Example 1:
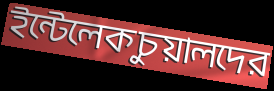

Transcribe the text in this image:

ইন্টেলেকচুয়ালদের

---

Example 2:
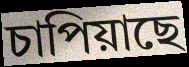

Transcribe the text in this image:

চাপিয়াছে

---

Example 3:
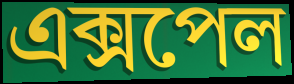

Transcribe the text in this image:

এক্সপেল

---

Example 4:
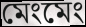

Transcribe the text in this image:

মেংমেং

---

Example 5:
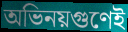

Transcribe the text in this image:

অভিনয়গুণেই